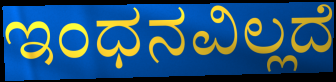
ಇಂಧನವಿಲ್ಲದೆ